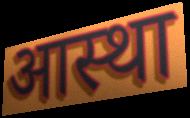
आस्था